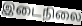
இடைநிலை